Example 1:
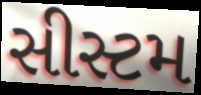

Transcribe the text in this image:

સીસ્ટમ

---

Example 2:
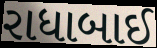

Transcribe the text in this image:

રાધાબાઈ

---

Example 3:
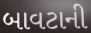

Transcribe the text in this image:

બાવટાની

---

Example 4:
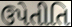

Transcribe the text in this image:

ઉપેતીતિ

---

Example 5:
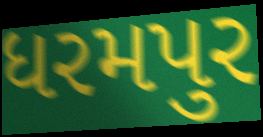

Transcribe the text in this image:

ધરમપુર